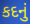
કદનું